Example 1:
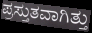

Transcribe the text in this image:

ಪ್ರಸ್ತುತವಾಗಿತ್ತು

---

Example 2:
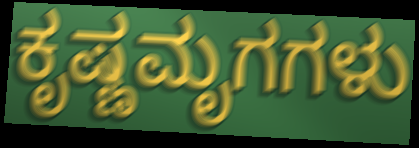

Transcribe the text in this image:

ಕೃಷ್ಣಮೃಗಗಳು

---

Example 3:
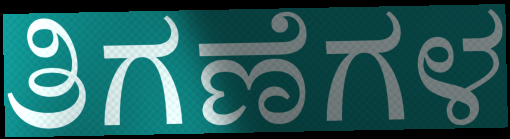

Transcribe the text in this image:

ತಿಗಣೆಗಳ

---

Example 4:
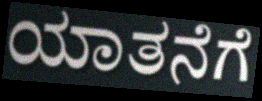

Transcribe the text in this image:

ಯಾತನೆಗೆ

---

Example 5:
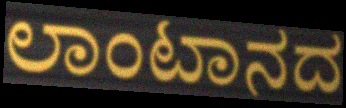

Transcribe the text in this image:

ಲಾಂಟಾನದ